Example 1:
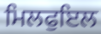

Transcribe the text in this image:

ਮਿਲਫੁਇਲ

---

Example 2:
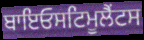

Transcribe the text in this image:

ਬਾਇਓਸਟਿਮੂਲੈਂਟਸ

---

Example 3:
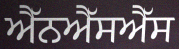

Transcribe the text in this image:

ਐੱਨਐੱਸਐੱਸ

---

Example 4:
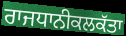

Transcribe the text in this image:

ਰਾਜਧਾਨੀਕਲਕੱਤਾ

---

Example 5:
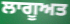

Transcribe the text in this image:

ਲਾਗੂਅਤ